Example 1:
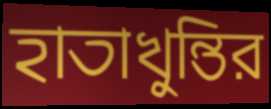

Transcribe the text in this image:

হাতাখুন্তির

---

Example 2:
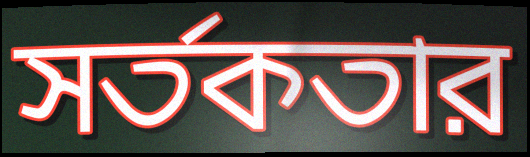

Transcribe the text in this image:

সর্তকতার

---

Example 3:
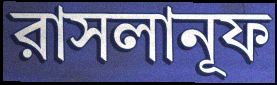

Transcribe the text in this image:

রাসলানূফ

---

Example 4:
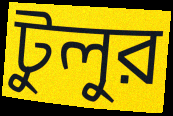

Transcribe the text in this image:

টুলুর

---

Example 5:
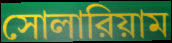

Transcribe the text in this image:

সোলারিয়াম